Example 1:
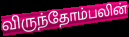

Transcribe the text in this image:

விருந்தோம்பலின்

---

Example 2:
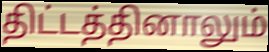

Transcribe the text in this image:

திட்டத்தினாலும்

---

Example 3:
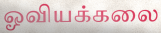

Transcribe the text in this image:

ஓவியக்கலை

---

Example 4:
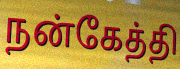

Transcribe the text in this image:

நன்கேத்தி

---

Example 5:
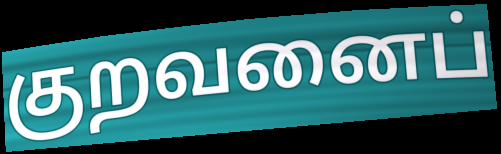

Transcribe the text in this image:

குறவனைப்